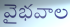
వైభవాల